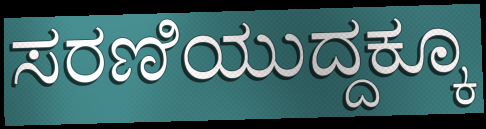
ಸರಣಿಯುದ್ದಕ್ಕೂ